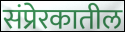
संप्रेरकातील